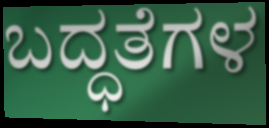
ಬದ್ಧತೆಗಳ